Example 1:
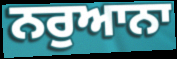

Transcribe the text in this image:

ਨਰੁਆਨਾ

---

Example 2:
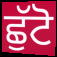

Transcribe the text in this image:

ਛੁੱਟੋ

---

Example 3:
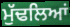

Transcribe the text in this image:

ਮੁੱਢਲਿਆਂ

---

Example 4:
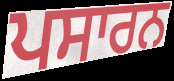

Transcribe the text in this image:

ਪਸਾਰਨ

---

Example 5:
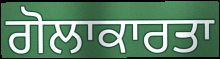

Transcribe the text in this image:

ਗੋਲਾਕਾਰਤਾ